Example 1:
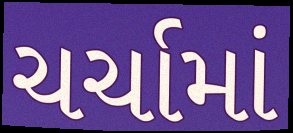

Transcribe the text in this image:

ચર્ચામાં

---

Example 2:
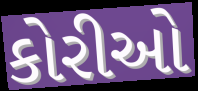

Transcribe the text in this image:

કોરીઓ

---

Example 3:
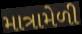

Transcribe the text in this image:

માત્રામેળી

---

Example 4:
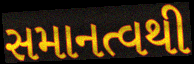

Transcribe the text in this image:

સમાનત્વથી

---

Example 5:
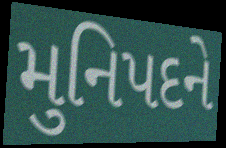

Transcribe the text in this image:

મુનિપદને